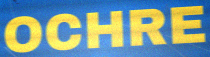
OCHRE